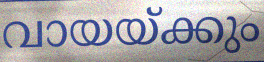
വായയ്ക്കും